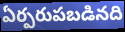
ఏర్పరుపబడినది